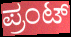
ಪ್ರಂಟ್